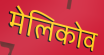
मेलिकोव